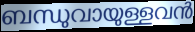
ബന്ധുവായുള്ളവൻ